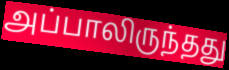
அப்பாலிருந்தது